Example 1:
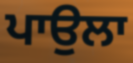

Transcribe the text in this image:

ਪਾਉਲਾ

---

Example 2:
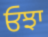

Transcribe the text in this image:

ਓਝਾ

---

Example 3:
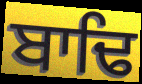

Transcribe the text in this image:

ਬਾਢਿ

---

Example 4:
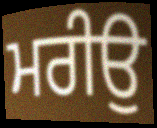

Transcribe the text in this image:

ਮਰੀਉ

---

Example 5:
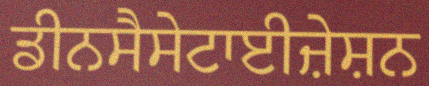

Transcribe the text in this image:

ਡੀਨਸੈਸੇਟਾਈਜ਼ੇਸ਼ਨ